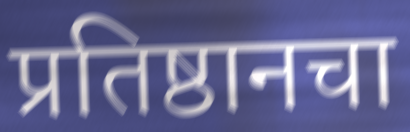
प्रतिष्ठानचा